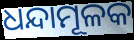
ଧନ୍ଦାମୂଳକ